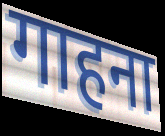
गाहना